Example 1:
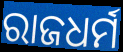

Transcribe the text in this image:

ରାଜଧର୍ମ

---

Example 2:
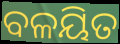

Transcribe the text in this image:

ବଳୟିତ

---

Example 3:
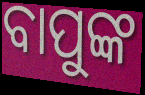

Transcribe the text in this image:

ବାପୁଙ୍କ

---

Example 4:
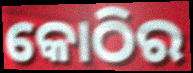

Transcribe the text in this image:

କୋଠିର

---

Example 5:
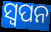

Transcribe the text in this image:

ସ୍ବପନ